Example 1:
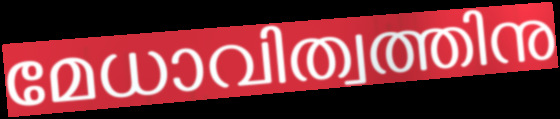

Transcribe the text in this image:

മേധാവിത്വത്തിനു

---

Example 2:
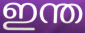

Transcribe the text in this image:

ഇന്ത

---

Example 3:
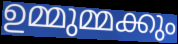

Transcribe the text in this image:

ഉമ്മുമ്മക്കും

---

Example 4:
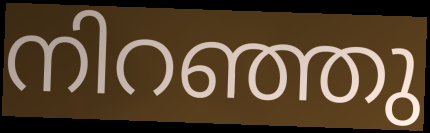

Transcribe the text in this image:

നിറഞ്ഞു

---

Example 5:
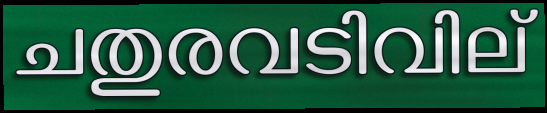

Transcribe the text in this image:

ചതുരവടിവില്